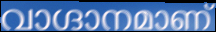
വാഗ്ദാനമാണ്